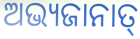
ଅଭ୍ୟଜାନାତ୍